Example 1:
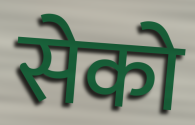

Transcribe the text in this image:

सेको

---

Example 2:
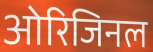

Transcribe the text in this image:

ओरिजिनल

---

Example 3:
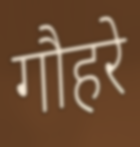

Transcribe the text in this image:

गौहरे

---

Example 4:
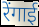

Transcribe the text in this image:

रेंगाई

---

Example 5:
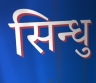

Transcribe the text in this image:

सिन्‍धु